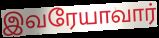
இவரேயாவார்